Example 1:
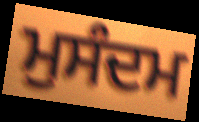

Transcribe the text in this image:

ਮੁਸੰਦਮ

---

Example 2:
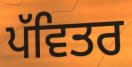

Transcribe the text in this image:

ਪੱਵਿਤਰ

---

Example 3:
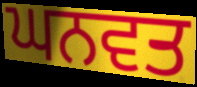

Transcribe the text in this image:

ਘਨਵਤ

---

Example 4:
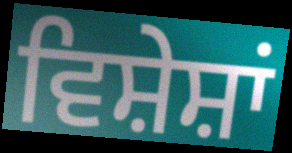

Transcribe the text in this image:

ਵਿਸ਼ੇਸ਼ਾਂ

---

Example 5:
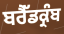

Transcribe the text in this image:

ਬਰੈੱਡਕ੍ਰੰਬ